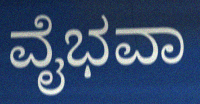
ವೈಭವಾ